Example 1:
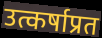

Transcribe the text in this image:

उत्कर्षाप्रत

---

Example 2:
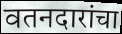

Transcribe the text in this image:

वतनदारांचा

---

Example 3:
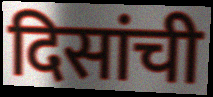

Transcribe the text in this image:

दिसांची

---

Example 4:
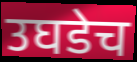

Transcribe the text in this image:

उघडेच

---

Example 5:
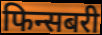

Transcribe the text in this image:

फिन्सबरी